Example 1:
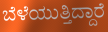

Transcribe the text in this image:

ಬೆಳೆಯುತ್ತಿದ್ದಾರೆ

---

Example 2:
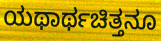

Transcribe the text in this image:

ಯಥಾರ್ಥಚಿತ್ತನೂ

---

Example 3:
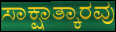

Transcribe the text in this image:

ಸಾಕ್ಷಾತ್ಕಾರವು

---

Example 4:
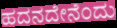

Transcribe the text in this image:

ಹದನದೇನೆಂದು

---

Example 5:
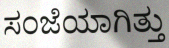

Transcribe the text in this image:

ಸಂಜೆಯಾಗಿತ್ತು